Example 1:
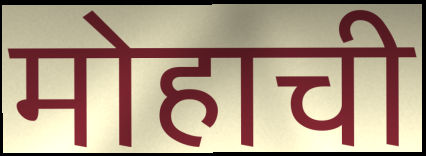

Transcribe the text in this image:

मोहाची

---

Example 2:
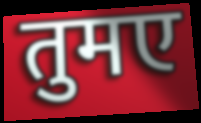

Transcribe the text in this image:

तुमए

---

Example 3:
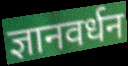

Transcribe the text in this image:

ज्ञानवर्धन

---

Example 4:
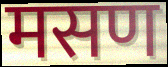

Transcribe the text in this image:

मसण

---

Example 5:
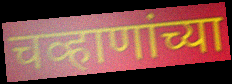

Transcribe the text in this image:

चव्हाणांच्या